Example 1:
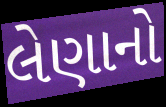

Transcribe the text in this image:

લેણાનો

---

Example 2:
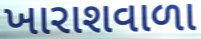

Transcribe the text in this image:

ખારાશવાળા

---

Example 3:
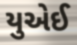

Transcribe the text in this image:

યુએઈ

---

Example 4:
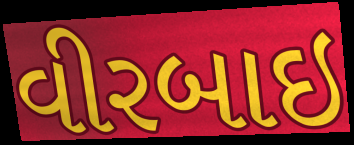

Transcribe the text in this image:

વીરબાઇ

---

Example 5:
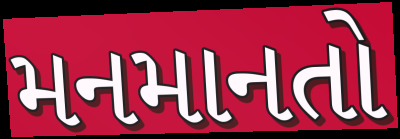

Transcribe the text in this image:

મનમાનતો